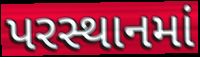
પરસ્થાનમાં